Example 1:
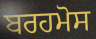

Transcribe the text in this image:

ਬਰਹਮੋਸ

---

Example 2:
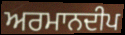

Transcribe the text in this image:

ਅਰਮਾਨਦੀਪ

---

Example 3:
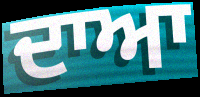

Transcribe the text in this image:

ਦਾਆ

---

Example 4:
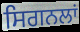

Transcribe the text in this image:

ਸਿਗਨਲਾਂ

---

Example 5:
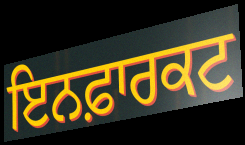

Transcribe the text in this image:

ਇਨਫ਼ਾਰਕਟ